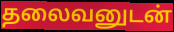
தலைவனுடன்